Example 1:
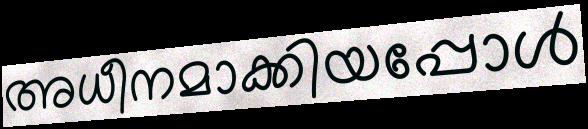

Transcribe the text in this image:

അധീനമാക്കിയപ്പോൾ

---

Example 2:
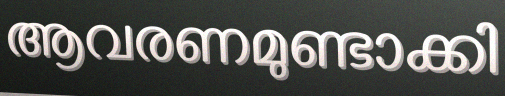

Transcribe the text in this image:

ആവരണമുണ്ടാക്കി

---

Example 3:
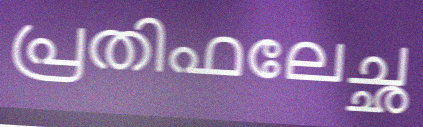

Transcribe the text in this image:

പ്രതിഫലേച്ഛ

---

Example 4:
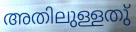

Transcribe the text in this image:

അതിലുള്ളതു്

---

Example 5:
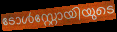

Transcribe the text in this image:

ടോൾസ്റ്റോയിയുടെ